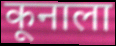
कूनाला